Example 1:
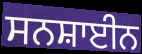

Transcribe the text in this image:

ਸਨਸ਼ਾਈਨ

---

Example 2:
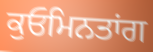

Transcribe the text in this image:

ਕੁਓਮਿਨਤਾਂਗ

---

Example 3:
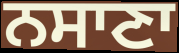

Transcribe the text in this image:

ਨਸਾਣਾ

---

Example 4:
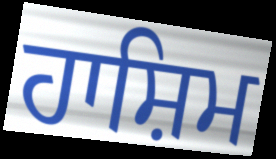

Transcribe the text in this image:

ਹਾਸ਼ਿਮ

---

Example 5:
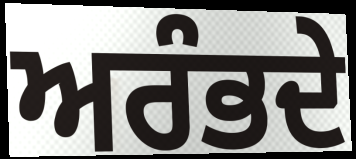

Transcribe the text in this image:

ਅਰੰਭਦੇ